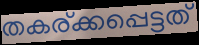
തകര്ക്കപ്പെട്ടത്